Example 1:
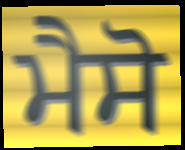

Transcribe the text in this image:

ਮੈਸੋ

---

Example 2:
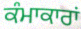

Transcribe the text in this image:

ਕੰਮਾਕਾਰਾਂ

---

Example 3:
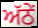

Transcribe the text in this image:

ਅੱਠੇਂ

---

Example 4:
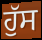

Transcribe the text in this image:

ਹੁੱਸ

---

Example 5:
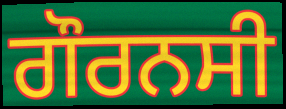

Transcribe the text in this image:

ਗੌਰਨਸੀ